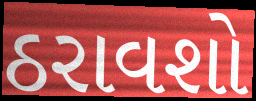
ઠરાવશો